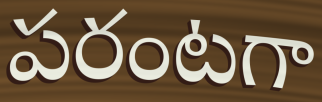
పరంటగా